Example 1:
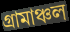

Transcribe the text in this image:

গ্রামাঞ্চল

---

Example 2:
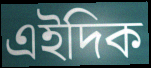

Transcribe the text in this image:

এইদিক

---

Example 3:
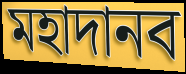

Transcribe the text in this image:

মহাদানব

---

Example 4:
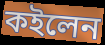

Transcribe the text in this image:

কইলেন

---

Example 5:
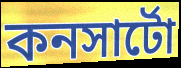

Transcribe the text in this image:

কনসার্টো